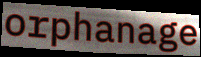
orphanage